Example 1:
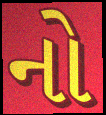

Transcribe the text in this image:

નો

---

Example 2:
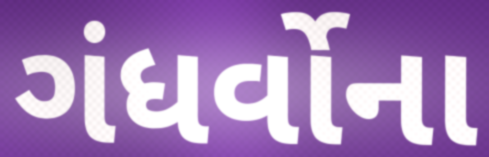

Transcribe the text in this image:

ગંધર્વોના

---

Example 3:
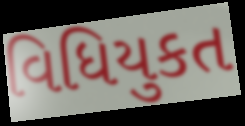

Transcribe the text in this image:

વિધિયુકત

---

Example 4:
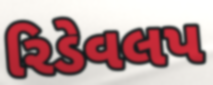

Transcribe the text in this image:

રિડેવલપ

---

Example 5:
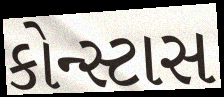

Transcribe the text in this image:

કોન્સ્ટાસ